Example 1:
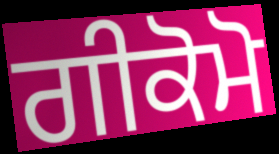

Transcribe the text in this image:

ਗੀਕੋਮੋ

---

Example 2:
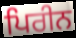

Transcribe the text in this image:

ਪਿਰੀਨ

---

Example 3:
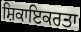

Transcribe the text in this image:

ਸ਼ਿਕਾਇਕਰਤਾ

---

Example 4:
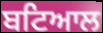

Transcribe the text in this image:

ਬਟਿਆਲ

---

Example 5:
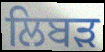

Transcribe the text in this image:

ਲਿਬੜ